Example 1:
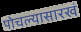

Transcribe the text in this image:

पोचल्यासारखं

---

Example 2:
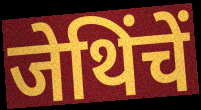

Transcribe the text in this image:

जेथिंचें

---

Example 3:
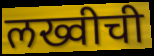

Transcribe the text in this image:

लख्वीची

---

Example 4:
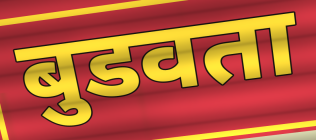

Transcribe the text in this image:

बुडवता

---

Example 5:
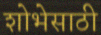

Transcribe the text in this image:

शोभेसाठी